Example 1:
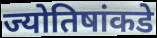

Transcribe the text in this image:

ज्योतिषांकडे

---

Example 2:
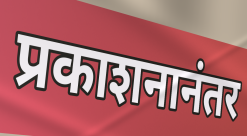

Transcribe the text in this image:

प्रकाशनानंतर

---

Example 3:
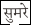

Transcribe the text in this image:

सुमरे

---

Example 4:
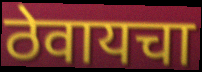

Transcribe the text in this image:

ठेवायचा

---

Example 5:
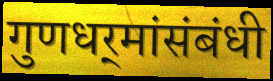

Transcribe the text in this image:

गुणधर्मांसंबंधी